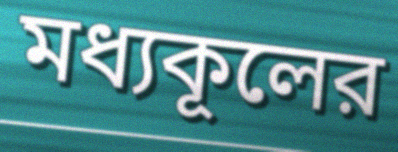
মধ্যকূলের